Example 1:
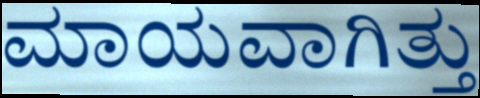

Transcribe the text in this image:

ಮಾಯವಾಗಿತ್ತು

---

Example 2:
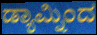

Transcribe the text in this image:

ಡ್ಯಾಮ್ನಿಂದ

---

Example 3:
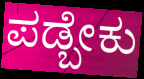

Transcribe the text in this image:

ಪಡ್ಬೇಕು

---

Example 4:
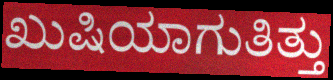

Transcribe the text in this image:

ಖುಷಿಯಾಗುತಿತ್ತು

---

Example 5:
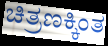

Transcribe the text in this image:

ಚಿತ್ರಣಕ್ಕಿಂತ